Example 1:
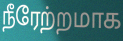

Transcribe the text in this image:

நீரேற்றமாக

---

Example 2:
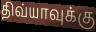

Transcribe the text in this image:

திவ்யாவுக்கு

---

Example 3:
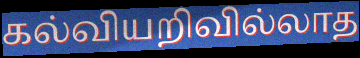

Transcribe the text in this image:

கல்வியறிவில்லாத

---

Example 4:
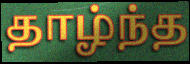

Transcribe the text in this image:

தாழ்ந்த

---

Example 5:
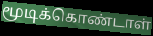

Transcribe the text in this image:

மூடிக்கொண்டாள்